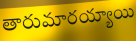
తారుమారయ్యాయి